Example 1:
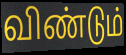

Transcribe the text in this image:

விண்டும்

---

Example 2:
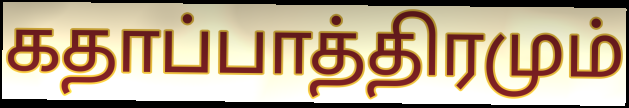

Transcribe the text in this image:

கதாப்பாத்திரமும்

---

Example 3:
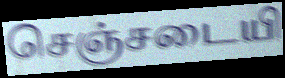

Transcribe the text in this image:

செஞ்சடையி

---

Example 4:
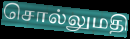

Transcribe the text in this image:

சொல்லுமதி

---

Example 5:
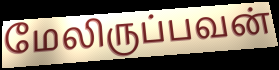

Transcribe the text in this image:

மேலிருப்பவன்